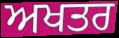
ਅਖਤਰ